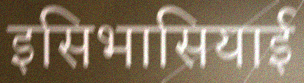
इसिभासियाई